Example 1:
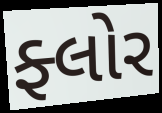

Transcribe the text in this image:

ફ્લોર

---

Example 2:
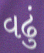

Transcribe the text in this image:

વઢું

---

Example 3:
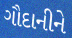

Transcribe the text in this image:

ગૌદાનીને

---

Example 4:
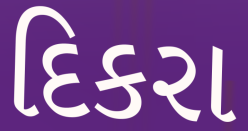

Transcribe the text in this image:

દિકરા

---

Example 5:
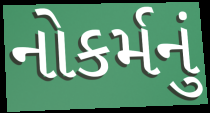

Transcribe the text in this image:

નોકર્મનું